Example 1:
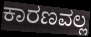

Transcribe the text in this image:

ಕಾರಣವಲ್ಲ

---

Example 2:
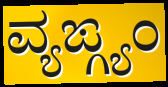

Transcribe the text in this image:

ವ್ಯಙ್ಗ್ಯಂ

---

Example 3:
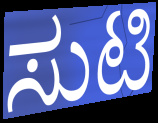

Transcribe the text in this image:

ಸುಟಿ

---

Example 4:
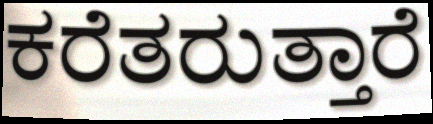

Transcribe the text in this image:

ಕರೆತರುತ್ತಾರೆ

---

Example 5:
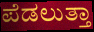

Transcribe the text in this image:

ಪೆಡಲುತ್ತಾ